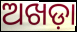
ଅଖଡ଼ା